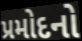
પ્રમોદનો